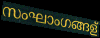
സംഘാംഗങ്ങള്